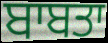
ਬਾਬਤਾ